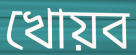
খোয়ব